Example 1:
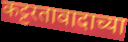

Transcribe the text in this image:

कट्टरतावादाच्या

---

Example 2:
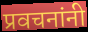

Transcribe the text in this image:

प्रवचनांनी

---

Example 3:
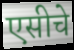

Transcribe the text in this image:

एसीचे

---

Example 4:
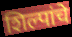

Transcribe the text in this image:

शिल्पांचे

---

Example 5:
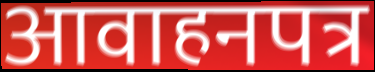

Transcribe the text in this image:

आवाहनपत्र